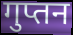
गुप्तन